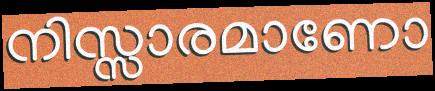
നിസ്സാരമാണോ